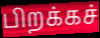
பிறக்கச்